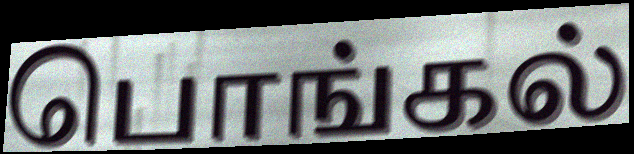
பொங்கல்